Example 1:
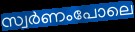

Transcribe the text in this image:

സ്വർണംപോലെ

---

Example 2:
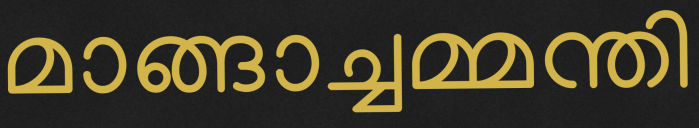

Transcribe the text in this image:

മാങ്ങാച്ചമ്മന്തി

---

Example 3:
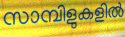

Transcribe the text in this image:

സാമ്പിളുകളിൽ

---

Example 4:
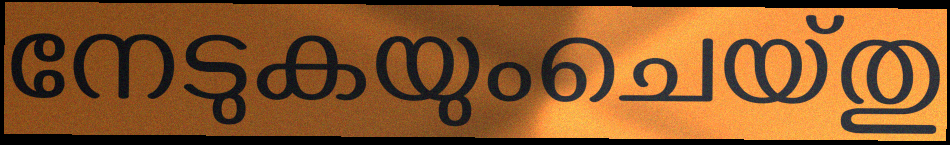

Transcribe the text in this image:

നേടുകയുംചെയ്തു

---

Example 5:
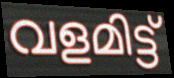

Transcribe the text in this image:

വളമിട്ട്